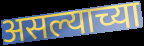
असल्याच्या